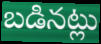
బడినట్లు